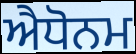
ਐਧੋਨਮ